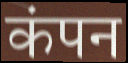
कंपन